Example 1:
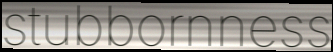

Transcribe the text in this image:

stubbornness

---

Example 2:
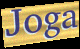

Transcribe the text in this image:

Joga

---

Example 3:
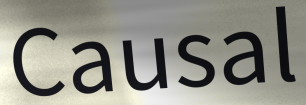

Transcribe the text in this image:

Causal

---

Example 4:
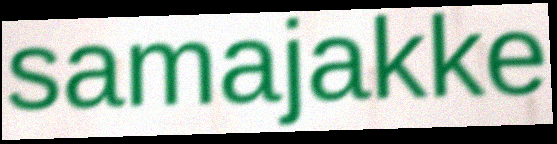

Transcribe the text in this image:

samajakke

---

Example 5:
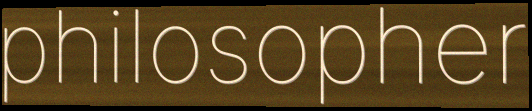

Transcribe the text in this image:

philosopher